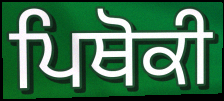
ਪਿਥੋਕੀ